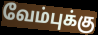
வேம்புக்கு